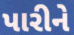
પારીને